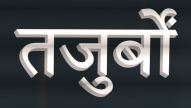
तजुर्बों